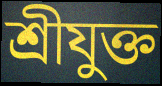
শ্রীযুক্ত